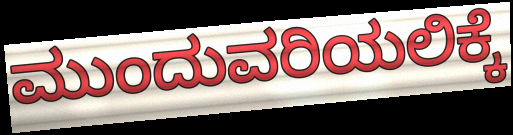
ಮುಂದುವರಿಯಲಿಕ್ಕೆ